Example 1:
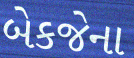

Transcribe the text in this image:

બેકજેના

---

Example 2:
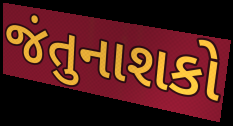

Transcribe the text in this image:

જંતુનાશકો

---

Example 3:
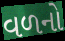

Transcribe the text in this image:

વળનો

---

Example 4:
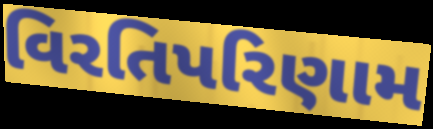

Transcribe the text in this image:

વિરતિપરિણામ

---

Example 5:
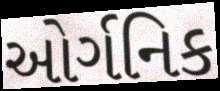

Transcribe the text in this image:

ઓર્ગનિક